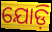
ଯୋଡ଼ି